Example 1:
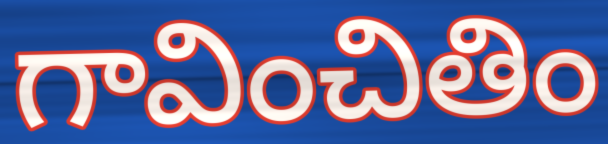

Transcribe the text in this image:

గావించితిం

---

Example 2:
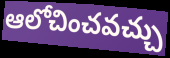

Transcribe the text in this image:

ఆలోచించవచ్చు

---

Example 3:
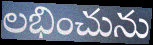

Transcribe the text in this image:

లభించును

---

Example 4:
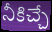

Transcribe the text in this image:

నీకిచ్చే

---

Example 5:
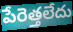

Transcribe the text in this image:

పేరెత్తలేదు